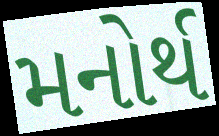
મનોર્થ